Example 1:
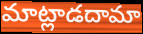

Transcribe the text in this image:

మాట్లాడదామా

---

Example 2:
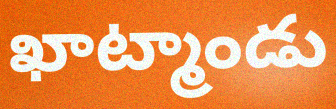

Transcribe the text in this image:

ఖాట్మాండు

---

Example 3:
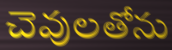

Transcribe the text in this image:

చెవులతోను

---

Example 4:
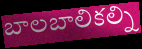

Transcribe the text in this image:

బాలబాలికల్ని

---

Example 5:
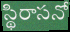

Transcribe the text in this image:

స్థిరాసనో